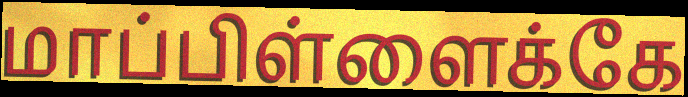
மாப்பிள்ளைக்கே